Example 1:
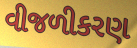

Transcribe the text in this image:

વીજળીકરણ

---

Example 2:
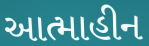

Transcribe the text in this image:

આત્માહીન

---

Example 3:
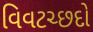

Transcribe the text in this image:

વિવટચ્છદો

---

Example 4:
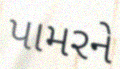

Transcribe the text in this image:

પામરને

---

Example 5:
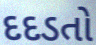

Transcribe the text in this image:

દદડતો